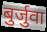
बुर्जुवा